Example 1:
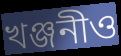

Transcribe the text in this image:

খঞ্জনীও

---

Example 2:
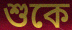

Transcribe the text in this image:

শুকে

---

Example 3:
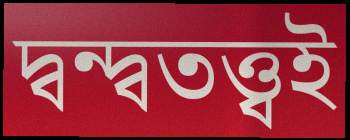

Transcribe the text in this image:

দ্বন্দ্বতত্ত্বই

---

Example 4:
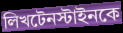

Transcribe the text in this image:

লিখটেনস্টাইনকে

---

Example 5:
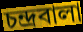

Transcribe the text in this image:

চন্দ্রবালা